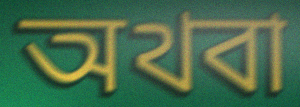
অথবা